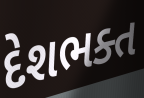
દેશભક્ત